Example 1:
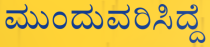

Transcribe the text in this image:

ಮುಂದುವರಿಸಿದ್ದೆ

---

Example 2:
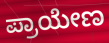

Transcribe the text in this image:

ಪ್ರಾಯೇಣ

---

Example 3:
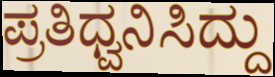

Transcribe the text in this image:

ಪ್ರತಿಧ್ವನಿಸಿದ್ದು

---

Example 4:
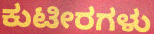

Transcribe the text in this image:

ಕುಟೀರಗಳು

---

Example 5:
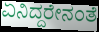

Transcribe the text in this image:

ಏನಿದ್ದರೇನಂತೆ